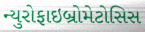
ન્યુરોફાઇબ્રોમેટોસિસ